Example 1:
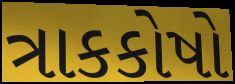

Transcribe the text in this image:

ત્રાકકોષો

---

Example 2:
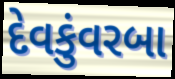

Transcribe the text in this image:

દેવકુંવરબા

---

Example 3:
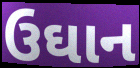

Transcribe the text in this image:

ઉઘાન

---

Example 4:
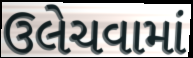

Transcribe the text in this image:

ઉલેચવામાં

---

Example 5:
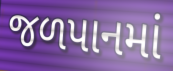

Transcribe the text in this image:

જળપાનમાં